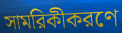
সামরিকীকরণে